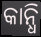
କାନ୍ଧି